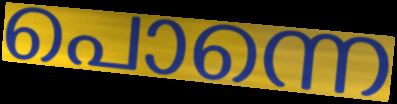
പൊന്നെ